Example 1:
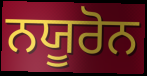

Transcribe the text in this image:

ਨਯੂਰੋਨ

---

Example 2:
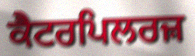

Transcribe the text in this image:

ਕੈਟਰਪਿਲਰਜ਼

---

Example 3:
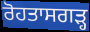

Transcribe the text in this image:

ਰੋਹਤਾਸਗੜ੍ਹ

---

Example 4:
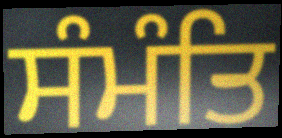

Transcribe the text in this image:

ਸੰਮੰਤਿ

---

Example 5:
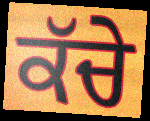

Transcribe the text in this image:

ਕੱਚੇ